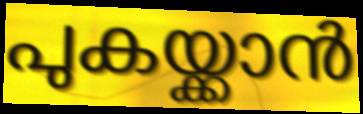
പുകയ്ക്കാൻ